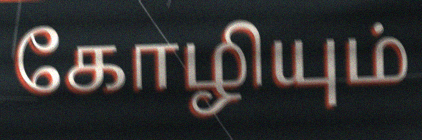
கோழியும்